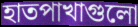
হাতপাখাগুলো